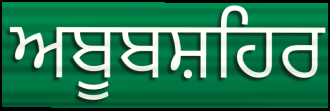
ਅਬੂਬਸ਼ਹਿਰ